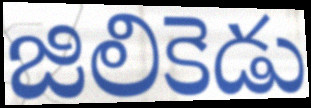
జిలికెడు